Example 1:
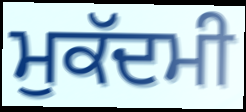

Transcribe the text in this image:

ਮੁਕੱਦਮੀ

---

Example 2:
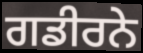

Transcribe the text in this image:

ਗਡੀਰਨੇ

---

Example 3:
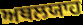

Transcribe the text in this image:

ਅਥਲਯਾਹ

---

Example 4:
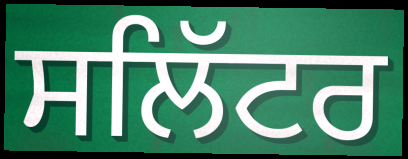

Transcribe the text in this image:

ਸਲਿੱਟਰ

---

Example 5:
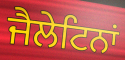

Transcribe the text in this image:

ਜੈਲੇਟਿਨਾਂ